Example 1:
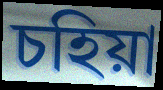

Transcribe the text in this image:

চহিয়া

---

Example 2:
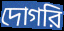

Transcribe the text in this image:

দোগরি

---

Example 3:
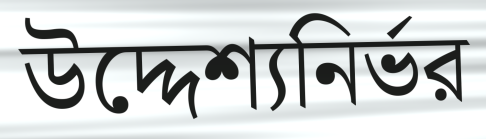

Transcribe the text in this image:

উদ্দেশ্যনির্ভর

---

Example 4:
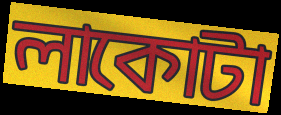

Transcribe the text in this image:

লাকোটা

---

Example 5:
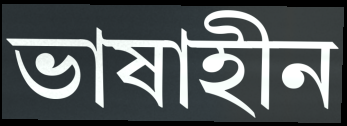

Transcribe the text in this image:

ভাষাহীন